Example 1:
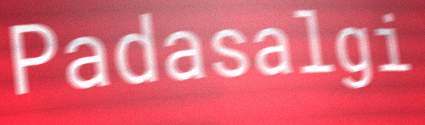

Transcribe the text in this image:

Padasalgi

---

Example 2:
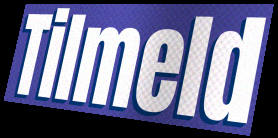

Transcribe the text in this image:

Tilmeld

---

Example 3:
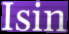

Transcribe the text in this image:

Isin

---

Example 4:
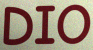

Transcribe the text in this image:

DIO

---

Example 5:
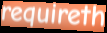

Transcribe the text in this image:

requireth